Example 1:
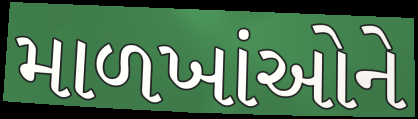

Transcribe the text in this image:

માળખાંઓને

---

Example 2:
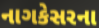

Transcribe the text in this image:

નાગકેસરના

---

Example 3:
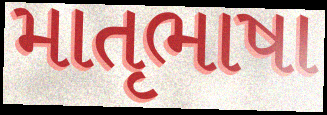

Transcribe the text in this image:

માતૃભાષા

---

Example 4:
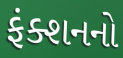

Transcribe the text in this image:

ફંક્શનનો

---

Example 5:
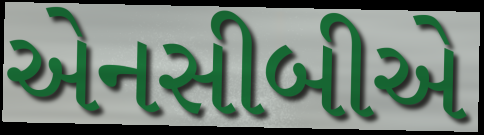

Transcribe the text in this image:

એનસીબીએ